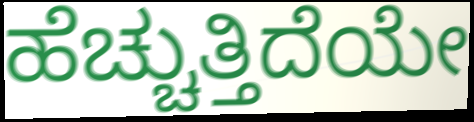
ಹೆಚ್ಚುತ್ತಿದೆಯೇ